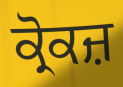
ਕ੍ਰੋਕਜ਼